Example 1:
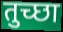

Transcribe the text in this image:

तुच्छा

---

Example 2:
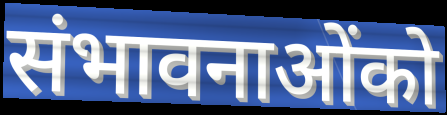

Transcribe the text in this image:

संभावनाओंको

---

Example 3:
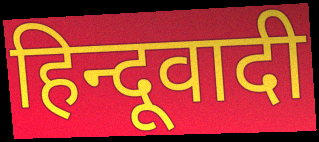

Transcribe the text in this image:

हिन्दूवादी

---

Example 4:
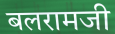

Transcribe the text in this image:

बलरामजी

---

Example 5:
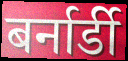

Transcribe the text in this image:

बर्नार्डी